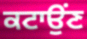
ਕਟਾਉਂਣ